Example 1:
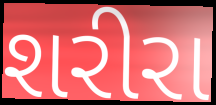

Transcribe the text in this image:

શરીરા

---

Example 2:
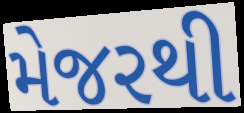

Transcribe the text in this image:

મેજરથી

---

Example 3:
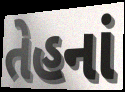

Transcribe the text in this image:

તેહનાં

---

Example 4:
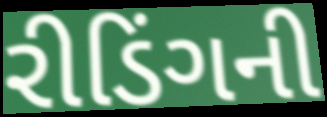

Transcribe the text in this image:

રીડિંગની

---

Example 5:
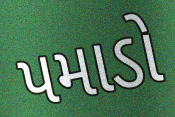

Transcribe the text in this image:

પમાડો